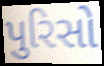
પુરિસો